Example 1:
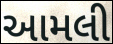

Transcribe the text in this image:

આમલી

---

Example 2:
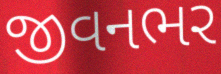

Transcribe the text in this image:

જીવનભર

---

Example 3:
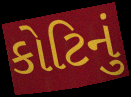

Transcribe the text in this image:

કોટિનું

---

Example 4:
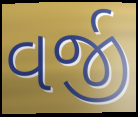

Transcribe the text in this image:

વર્જી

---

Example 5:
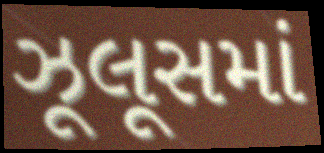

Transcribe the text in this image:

ઝૂલૂસમાં